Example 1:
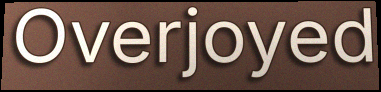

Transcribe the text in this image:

Overjoyed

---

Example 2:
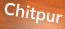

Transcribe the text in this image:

Chitpur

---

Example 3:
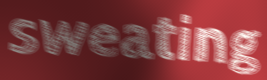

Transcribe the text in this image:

sweating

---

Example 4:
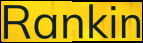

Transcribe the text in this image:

Rankin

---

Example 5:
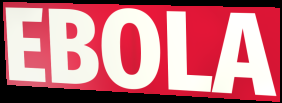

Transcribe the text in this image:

EBOLA